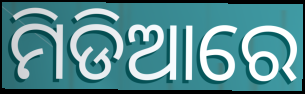
ମିଡିଆରେ